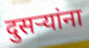
दुसऱ्यांना